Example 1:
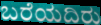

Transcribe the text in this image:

ಬರೆಯದಿರು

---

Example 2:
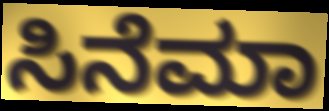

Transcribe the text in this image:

ಸಿನೆಮಾ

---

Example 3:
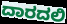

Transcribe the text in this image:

ದಾರದಲಿ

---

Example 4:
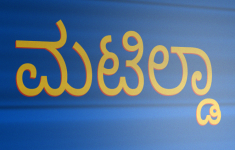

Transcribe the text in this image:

ಮಟಿಲ್ಡಾ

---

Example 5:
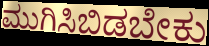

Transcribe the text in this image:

ಮುಗಿಸಿಬಿಡಬೇಕು